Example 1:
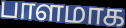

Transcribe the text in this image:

பாளமாக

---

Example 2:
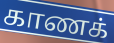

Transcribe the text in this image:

காணக்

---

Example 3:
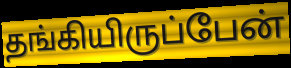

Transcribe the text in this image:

தங்கியிருப்பேன்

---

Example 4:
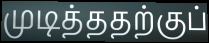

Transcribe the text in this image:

முடித்ததற்குப்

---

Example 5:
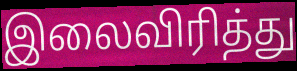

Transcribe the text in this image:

இலைவிரித்து